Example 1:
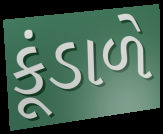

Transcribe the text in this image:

કૂંડાળે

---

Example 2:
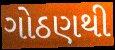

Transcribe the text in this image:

ગોઠણથી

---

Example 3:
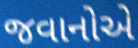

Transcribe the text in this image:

જવાનોએ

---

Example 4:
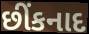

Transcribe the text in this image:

છીંકનાદ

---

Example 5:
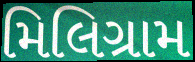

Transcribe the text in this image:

મિલિગ્રામ